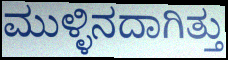
ಮುಳ್ಳಿನದಾಗಿತ್ತು